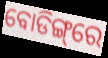
ବୋଡିଙ୍ଗ୍‌ରେ